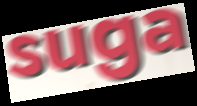
suga